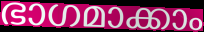
ഭാഗമാക്കാം